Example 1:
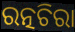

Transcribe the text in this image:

ରତ୍ନଚିରା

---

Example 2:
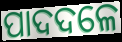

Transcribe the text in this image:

ପାଦଦଳେ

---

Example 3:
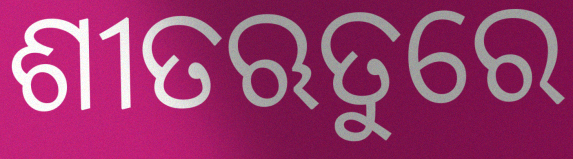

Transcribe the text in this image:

ଶୀତଋତୁରେ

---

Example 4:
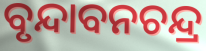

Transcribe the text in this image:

ବୃନ୍ଦାବନଚନ୍ଦ୍ର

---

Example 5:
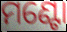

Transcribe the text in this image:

ମଣ୍ଟୋ